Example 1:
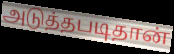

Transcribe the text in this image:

அடுத்தபடிதான்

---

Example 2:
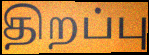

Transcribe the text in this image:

திறப்பு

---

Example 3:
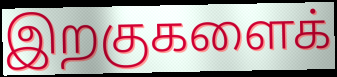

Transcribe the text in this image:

இறகுகளைக்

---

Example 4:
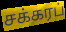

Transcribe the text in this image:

சக்கரப்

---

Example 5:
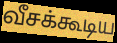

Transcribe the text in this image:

வீசக்கூடிய